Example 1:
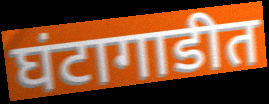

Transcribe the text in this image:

घंटागाडीत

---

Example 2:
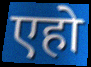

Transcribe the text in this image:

एहो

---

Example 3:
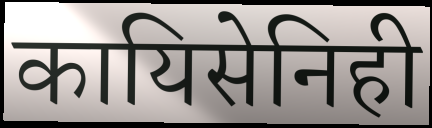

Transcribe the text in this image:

कायिसेनिही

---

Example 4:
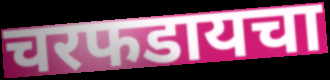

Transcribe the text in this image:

चरफडायचा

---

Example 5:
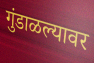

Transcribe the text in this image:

गुंडाळल्यावर